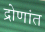
द्रोणांत